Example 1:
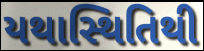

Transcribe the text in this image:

યથાસ્થિતિથી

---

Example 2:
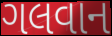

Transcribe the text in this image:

ગલવાન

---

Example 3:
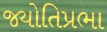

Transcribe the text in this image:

જ્યોતિપ્રભા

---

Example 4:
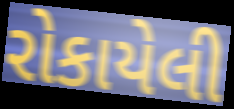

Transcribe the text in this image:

રોકાયેલી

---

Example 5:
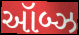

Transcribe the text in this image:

ઑબ્ઝ